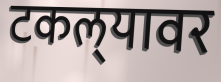
टकल्यावर